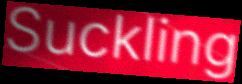
Suckling